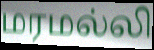
மரமல்லி